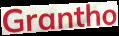
Grantho